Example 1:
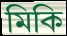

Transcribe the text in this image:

মিকি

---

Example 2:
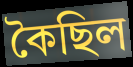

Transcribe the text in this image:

কৈছিল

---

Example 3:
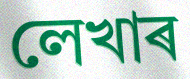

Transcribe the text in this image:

লেখাৰ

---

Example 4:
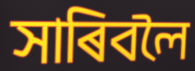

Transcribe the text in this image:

সাৰিবলৈ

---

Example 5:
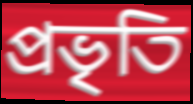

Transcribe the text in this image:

প্ৰভৃতি